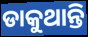
ଡାକୁଥାନ୍ତି